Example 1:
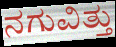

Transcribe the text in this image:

ನಗುವಿತ್ತು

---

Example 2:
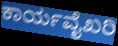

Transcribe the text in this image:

ಕಾರ್ಯವೈಖರಿ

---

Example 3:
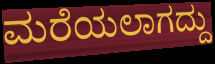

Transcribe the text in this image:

ಮರೆಯಲಾಗದ್ದು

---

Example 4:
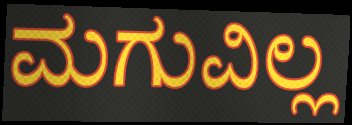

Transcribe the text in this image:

ಮಗುವಿಲ್ಲ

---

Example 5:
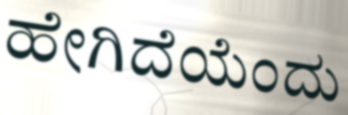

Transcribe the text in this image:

ಹೇಗಿದೆಯೆಂದು